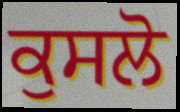
ਕੁਸਲੋ